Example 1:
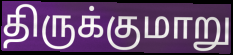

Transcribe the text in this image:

திருக்குமாறு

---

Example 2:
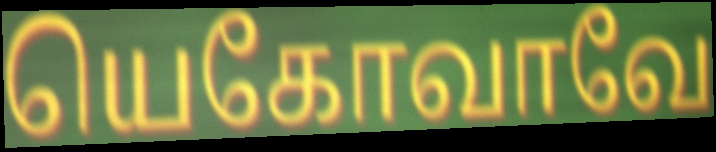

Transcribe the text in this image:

யெகோவாவே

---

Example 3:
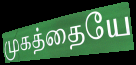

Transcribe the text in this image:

முகத்தையே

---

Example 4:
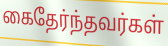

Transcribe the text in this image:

கைதேர்ந்தவர்கள்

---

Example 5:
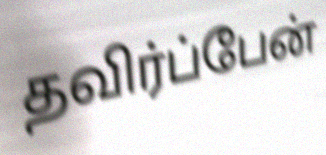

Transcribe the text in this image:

தவிர்ப்பேன்